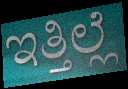
ಇತ್ತಿಲ್ಲೆ